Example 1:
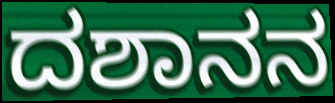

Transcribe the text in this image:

ದಶಾನನ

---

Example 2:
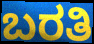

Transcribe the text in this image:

ಬರತಿ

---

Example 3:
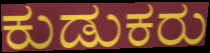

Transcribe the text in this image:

ಕುಡುಕರು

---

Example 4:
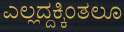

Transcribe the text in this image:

ಎಲ್ಲದ್ದಕ್ಕಿಂತಲೂ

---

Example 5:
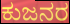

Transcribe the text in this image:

ಕುಜನರ